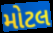
મોટલ